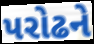
પરોઢને